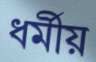
ধর্মীয়